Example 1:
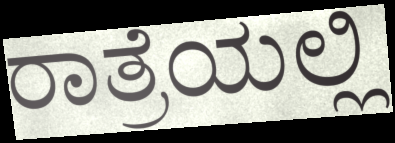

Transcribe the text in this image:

ರಾತ್ರೆಯಲ್ಲಿ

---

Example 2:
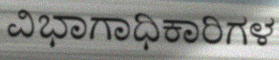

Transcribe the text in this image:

ವಿಭಾಗಾಧಿಕಾರಿಗಳ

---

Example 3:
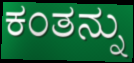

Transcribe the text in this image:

ಕಂತನ್ನು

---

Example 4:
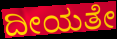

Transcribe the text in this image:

ದೀಯತೇ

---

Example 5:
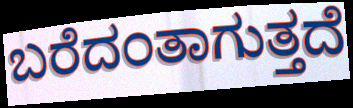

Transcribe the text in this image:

ಬರೆದಂತಾಗುತ್ತದೆ